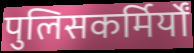
पुलिसकर्मिर्यों